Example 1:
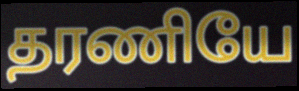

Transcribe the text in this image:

தரணியே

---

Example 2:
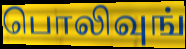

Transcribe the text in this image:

பொலிவுங்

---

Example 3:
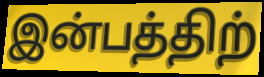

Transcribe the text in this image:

இன்பத்திற்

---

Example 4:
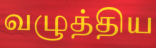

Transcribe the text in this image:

வழுத்திய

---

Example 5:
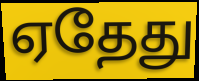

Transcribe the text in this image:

ஏதேது